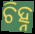
ଚିହ୍ନ